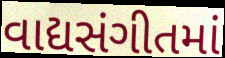
વાદ્યસંગીતમાં